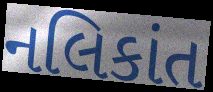
નલિકાંત